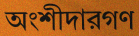
অংশীদারগণ